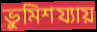
ভুমিশয্যায়